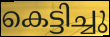
കെട്ടിച്ചു